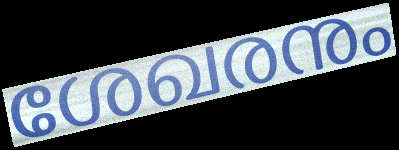
ശേഖരനും